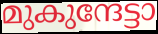
മുകുന്ദേട്ടാ